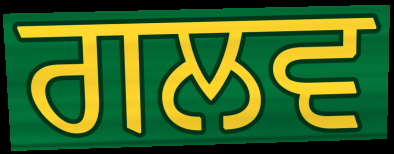
ਗਲਵ